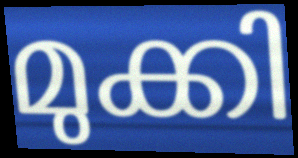
മുക്കി